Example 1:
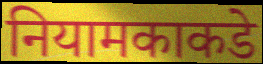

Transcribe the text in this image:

नियामकाकडे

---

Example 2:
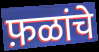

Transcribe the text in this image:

फ़ळांचे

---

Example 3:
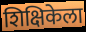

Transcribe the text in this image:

शिक्षिकेला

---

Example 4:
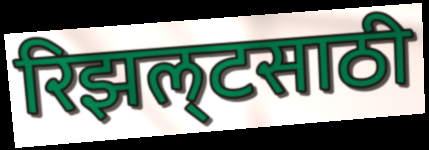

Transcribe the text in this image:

रिझल्टसाठी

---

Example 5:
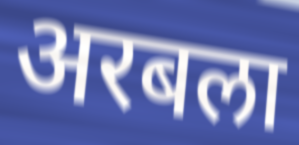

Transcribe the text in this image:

अरबला